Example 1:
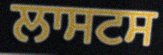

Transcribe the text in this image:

ਲਾਸਟਸ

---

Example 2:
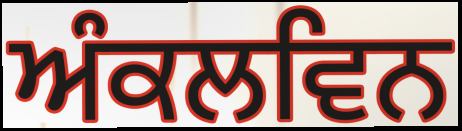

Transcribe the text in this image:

ਅੰਕਲਵਿਨ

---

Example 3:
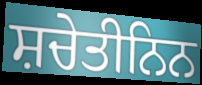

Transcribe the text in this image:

ਸ਼ਚੇਤੀਨਿਨ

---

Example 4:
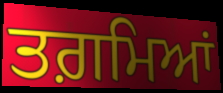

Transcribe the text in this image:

ਤਗ਼ਮਿਆਂ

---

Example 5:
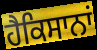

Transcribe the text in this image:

ਹੈਕਿਸਾਨਾਂ